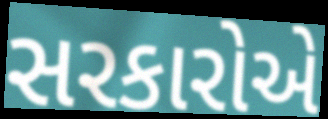
સરકારોએ